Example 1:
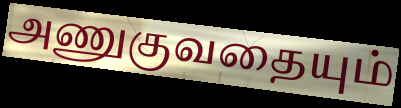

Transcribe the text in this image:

அணுகுவதையும்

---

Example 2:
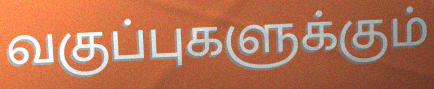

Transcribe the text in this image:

வகுப்புகளுக்கும்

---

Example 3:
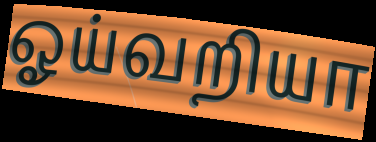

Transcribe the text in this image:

ஓய்வறியா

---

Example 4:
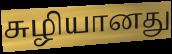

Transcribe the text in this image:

சுழியானது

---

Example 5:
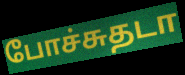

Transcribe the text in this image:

போச்சுதடா